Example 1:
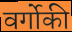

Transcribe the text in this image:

वर्गोकी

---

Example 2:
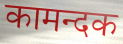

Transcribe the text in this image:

कामन्दक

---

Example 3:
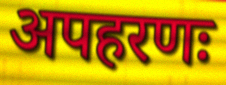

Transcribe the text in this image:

अपहरणः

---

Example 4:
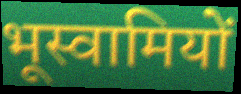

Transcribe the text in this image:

भूस्वामियों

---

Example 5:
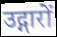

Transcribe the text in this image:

उद्गारों